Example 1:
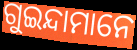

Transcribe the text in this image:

ଗୁଇନ୍ଦାମାନେ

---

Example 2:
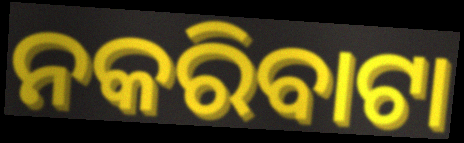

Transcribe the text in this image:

ନକରିବାଟା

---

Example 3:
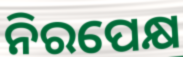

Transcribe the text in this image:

ନିରପେକ୍ଷ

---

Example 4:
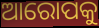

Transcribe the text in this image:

ଆରୋପକୁ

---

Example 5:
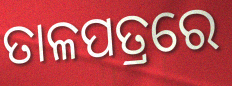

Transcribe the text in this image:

ତାଳପତ୍ରରେ